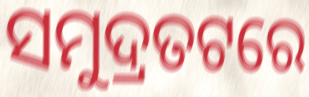
ସମୁଦ୍ରତଟରେ